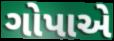
ગોપાએ